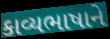
કાવ્યભાષાને